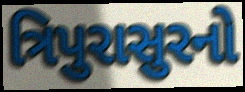
ત્રિપુરાસુરનો